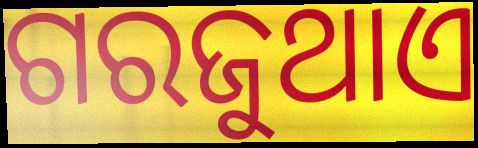
ଗରଜୁଥାଏ